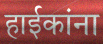
हाईकांना